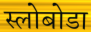
स्लोबोडा